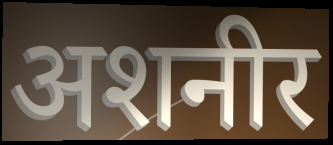
अशनीर